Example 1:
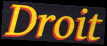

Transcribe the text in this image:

Droit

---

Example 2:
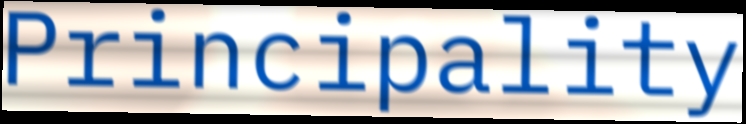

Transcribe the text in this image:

Principality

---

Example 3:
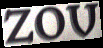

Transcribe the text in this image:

zou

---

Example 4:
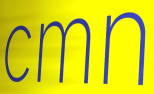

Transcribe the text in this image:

cmn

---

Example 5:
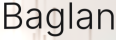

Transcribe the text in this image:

Baglan